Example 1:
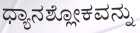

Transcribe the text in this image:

ಧ್ಯಾನಶ್ಲೋಕವನ್ನು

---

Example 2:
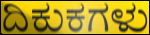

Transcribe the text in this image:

ದಿಕುಕಗಳು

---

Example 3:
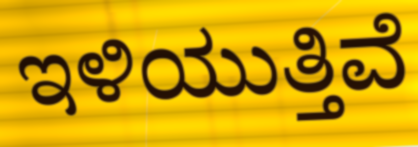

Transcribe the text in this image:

ಇಳಿಯುತ್ತಿವೆ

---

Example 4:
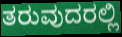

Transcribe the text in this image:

ತರುವುದರಲ್ಲಿ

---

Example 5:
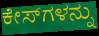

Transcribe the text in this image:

ಕೇಸ್‌ಗಳನ್ನು